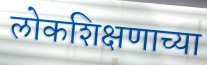
लोकशिक्षणाच्या